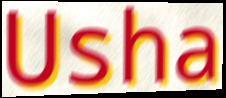
Usha